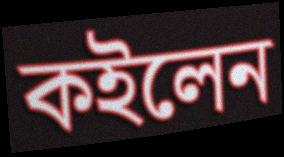
কইলেন